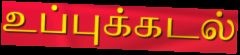
உப்புக்கடல்